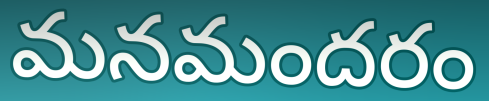
మనమందరం